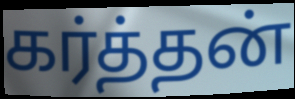
கர்த்தன்